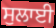
ਸੁਲਾਈ